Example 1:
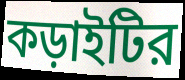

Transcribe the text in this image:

কড়াইটির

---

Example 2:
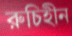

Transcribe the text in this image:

রুচিহীন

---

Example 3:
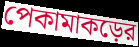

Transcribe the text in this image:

পেকামাকড়ের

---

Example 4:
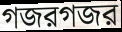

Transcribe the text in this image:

গজরগজর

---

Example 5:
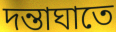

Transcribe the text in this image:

দন্তাঘাতে